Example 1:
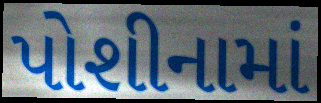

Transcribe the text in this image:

પોશીનામાં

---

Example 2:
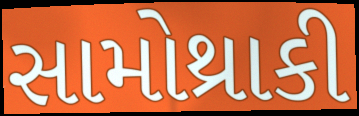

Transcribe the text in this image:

સામોથ્રાકી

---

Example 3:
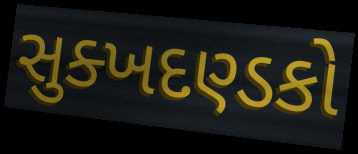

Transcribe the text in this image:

સુક્ખદણ્ડકો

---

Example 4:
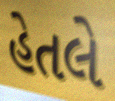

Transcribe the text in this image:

હેતલે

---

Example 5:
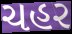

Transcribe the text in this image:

ચહર